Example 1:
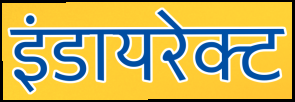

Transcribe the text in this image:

इंडायरेक्ट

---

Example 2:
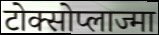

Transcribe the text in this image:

टोक्सोप्लाज्मा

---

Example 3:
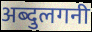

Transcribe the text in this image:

अब्दुलगनी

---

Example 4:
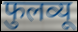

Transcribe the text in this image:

फुलव्यू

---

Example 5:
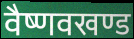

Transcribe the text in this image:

वैष्णवखण्ड